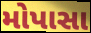
મોપાસા